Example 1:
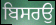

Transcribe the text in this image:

ਬਿਸਰਉ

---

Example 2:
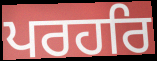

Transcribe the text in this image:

ਪਰਹਰਿ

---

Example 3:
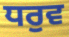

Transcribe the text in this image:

ਧਰੁਵ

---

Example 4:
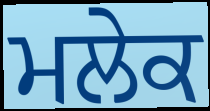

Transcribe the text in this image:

ਮਲੇਕ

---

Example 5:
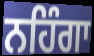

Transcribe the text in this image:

ਨਹਿੰਗਾ